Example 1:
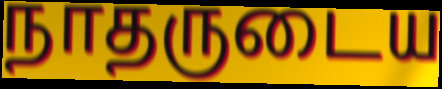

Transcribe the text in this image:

நாதருடைய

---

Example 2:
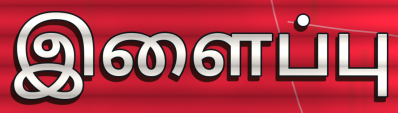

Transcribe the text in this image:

இளைப்பு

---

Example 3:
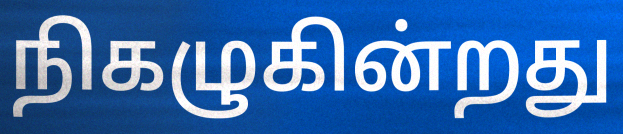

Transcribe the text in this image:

நிகழுகின்றது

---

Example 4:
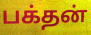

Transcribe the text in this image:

பக்தன்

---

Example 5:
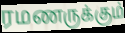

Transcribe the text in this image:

ரமணருக்கும்